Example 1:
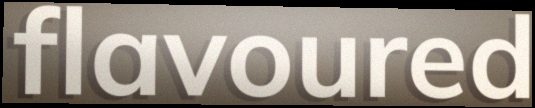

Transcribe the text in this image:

flavoured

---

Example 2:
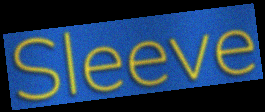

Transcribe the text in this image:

Sleeve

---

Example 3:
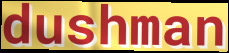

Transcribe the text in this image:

dushman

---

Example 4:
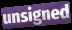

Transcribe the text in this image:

unsigned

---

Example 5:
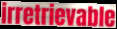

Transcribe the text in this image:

irretrievable